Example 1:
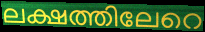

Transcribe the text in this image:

ലക്ഷത്തിലേറെ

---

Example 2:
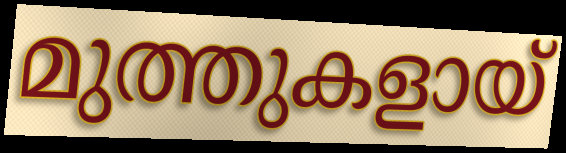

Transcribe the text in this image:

മുത്തുകളായ്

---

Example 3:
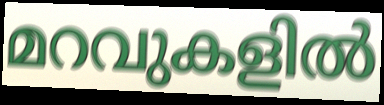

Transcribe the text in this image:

മറവുകളിൽ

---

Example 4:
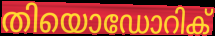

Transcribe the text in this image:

തിയൊഡോറിക്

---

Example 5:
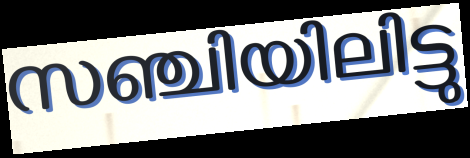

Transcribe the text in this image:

സഞ്ചിയിലിട്ടു